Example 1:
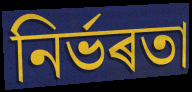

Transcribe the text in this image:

নিৰ্ভৰতা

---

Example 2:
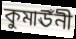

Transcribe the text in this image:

কুমাঊঁনী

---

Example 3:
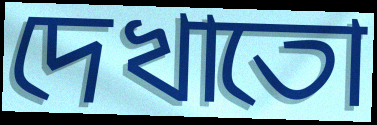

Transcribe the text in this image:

দেখাতো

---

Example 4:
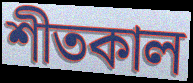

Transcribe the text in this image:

শীতকাল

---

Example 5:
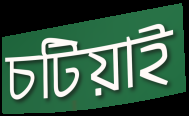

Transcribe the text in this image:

চটিয়াই